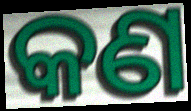
କଣ